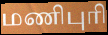
மணிபுரி